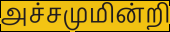
அச்சமுமின்றி